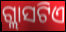
ଗ୍ଲାସଟିଏ